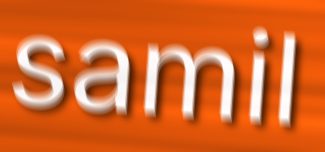
samil